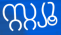
സ്റ്റ്യൂ